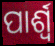
ପାର୍ଶ୍ବ